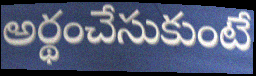
అర్థంచేసుకుంటే